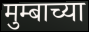
मुम्बाच्या